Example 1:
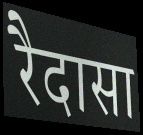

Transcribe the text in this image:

रैदासा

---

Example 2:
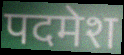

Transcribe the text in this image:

पदमेश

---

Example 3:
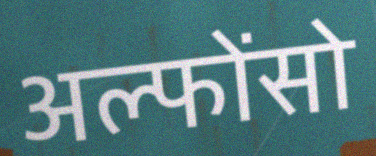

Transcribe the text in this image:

अल्फोंसो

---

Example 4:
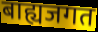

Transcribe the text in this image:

बाह्यजगत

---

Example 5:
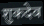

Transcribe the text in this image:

शुकदेव